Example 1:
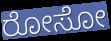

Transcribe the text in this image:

ರೋಸೋ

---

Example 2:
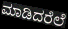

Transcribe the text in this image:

ಮಾಡಿದರೆಲೆ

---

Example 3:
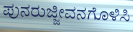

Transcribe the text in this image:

ಪುನರುಜ್ಜೀವನಗೊಳಿಸಿ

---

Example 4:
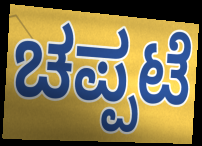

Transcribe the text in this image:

ಚಪ್ಪಟೆ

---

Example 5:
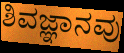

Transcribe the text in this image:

ಶಿವಜ್ಞಾನವು